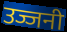
उज्जनी